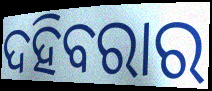
ଦହିବରାର